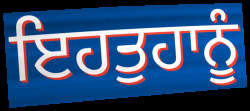
ਇਹਤੁਹਾਨੂੰ